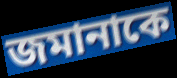
জমানাকে